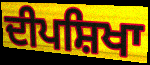
ਦੀਪਸ਼ਿਖਾ